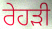
ਰੇਹੜੀ